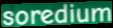
soredium